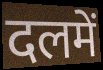
दलमें